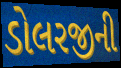
ડોલરજીની